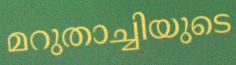
മറുതാച്ചിയുടെ